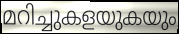
മറിച്ചുകളയുകയും